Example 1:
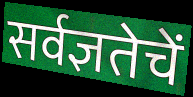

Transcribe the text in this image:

सर्वज्ञतेचें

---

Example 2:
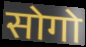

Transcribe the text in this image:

सोगो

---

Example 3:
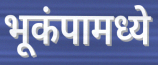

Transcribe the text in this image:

भूकंपामध्ये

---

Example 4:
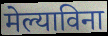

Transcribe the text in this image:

मेल्याविना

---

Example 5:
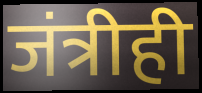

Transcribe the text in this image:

जंत्रीही